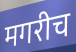
मगरीच